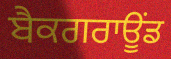
ਬੈਕਗਰਾਊਂਡ